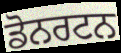
ਡੋਨਰਟਨ